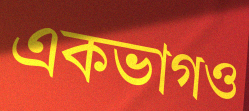
একভাগও